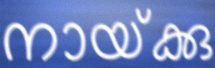
നായ്‌ക്കു